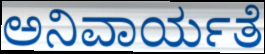
ಅನಿವಾರ್ಯತೆ